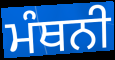
ਮੰਥਨੀ